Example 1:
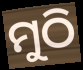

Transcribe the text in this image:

ମୁଠି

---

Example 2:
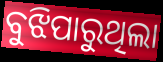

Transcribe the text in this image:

ବୁଝିପାରୁଥିଲା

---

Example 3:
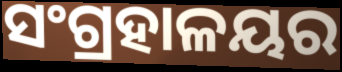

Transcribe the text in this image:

ସଂଗ୍ରହାଳୟର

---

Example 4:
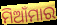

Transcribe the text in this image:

ମିଆଁମାର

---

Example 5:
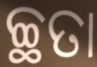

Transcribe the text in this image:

ଚ୍ଛତା